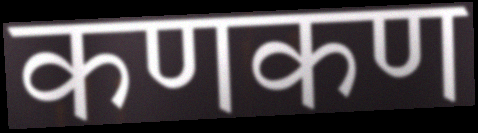
कणकण